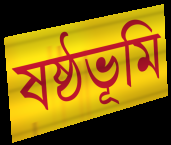
ষষ্ঠভূমি